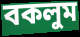
বকলুম